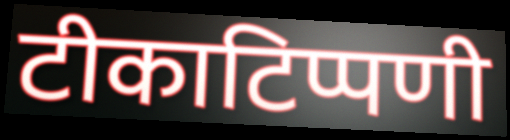
टीकाटिप्पणी